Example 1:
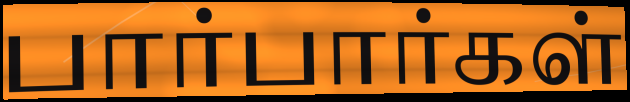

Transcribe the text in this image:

பார்பார்கள்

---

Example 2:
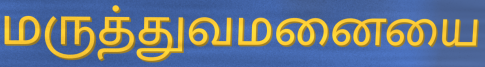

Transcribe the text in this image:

மருத்துவமனையை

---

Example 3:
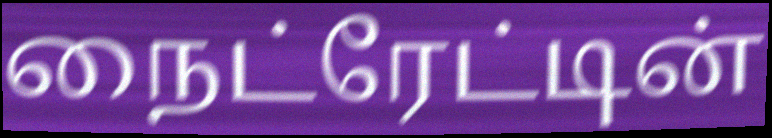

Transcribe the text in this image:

நைட்ரேட்டின்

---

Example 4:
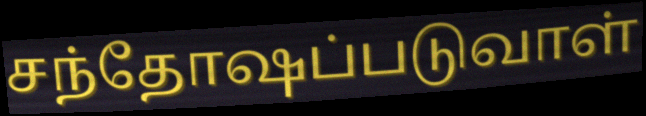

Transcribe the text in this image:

சந்தோஷப்படுவாள்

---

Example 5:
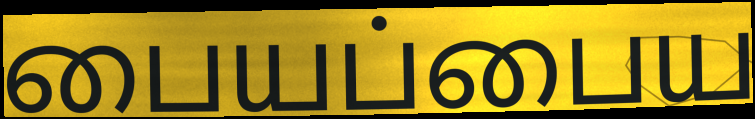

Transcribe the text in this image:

பையப்பைய